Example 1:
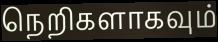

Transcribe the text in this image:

நெறிகளாகவும்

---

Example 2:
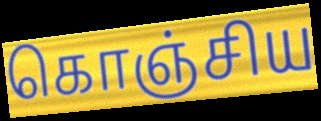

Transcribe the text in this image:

கொஞ்சிய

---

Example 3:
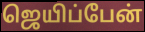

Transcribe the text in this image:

ஜெயிப்பேன்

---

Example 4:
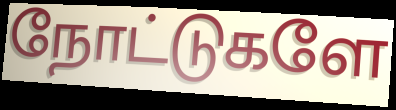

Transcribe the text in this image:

நோட்டுகளே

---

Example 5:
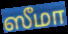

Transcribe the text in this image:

ஸீமா